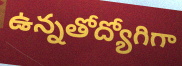
ఉన్నతోద్యోగిగా